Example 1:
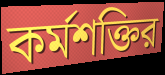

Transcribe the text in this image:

কর্মশক্তির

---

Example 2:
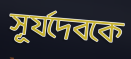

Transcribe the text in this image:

সূর্যদেবকে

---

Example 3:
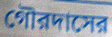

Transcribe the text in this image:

গৌরদাসের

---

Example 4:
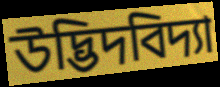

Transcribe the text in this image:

উদ্ভিদবিদ্যা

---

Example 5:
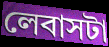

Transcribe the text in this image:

লেবাসটা